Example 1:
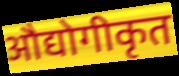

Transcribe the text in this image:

औद्योगीकृत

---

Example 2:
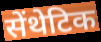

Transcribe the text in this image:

सेंथेटिक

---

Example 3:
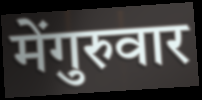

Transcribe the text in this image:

मेंगुरुवार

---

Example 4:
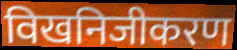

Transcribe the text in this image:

विखनिजीकरण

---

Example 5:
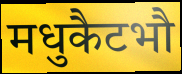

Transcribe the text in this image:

मधुकैटभौ